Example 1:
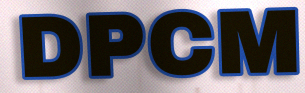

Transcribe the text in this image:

DPCM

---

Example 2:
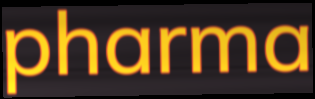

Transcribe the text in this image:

pharma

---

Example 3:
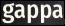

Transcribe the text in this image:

gappa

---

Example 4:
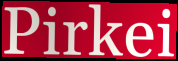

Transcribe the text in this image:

Pirkei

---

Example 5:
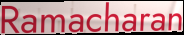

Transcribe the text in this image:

Ramacharan